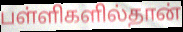
பள்ளிகளில்தான்